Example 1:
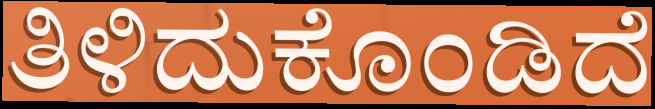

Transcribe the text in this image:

ತಿಳಿದುಕೊಂಡಿದೆ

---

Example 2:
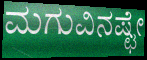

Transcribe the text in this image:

ಮಗುವಿನಷ್ಟೇ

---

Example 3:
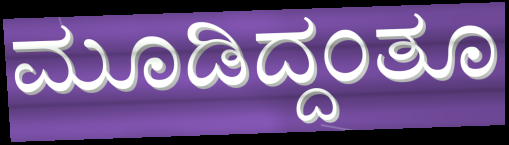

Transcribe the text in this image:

ಮೂಡಿದ್ದಂತೂ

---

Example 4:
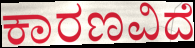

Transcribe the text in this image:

ಕಾರಣವಿದೆ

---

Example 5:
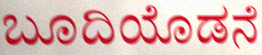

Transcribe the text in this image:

ಬೂದಿಯೊಡನೆ